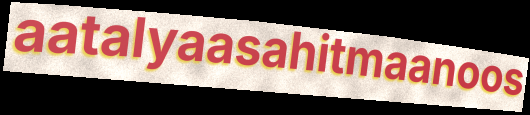
aatalyaasahitmaanoos